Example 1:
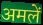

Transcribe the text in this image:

अमलें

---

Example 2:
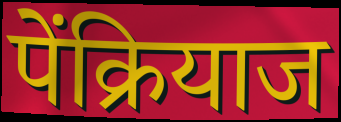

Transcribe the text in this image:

पेंक्रियाज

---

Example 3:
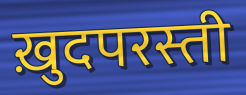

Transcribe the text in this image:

ख़ुदपरस्ती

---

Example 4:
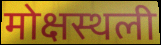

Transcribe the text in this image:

मोक्षस्थली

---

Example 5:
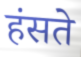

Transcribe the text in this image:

हंसते